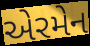
એરમેન